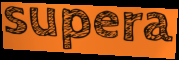
supera